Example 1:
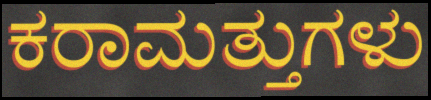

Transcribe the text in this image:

ಕರಾಮತ್ತುಗಳು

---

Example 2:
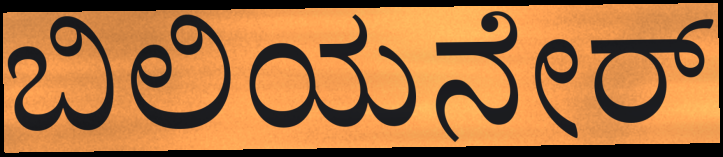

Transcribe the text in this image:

ಬಿಲಿಯನೇರ್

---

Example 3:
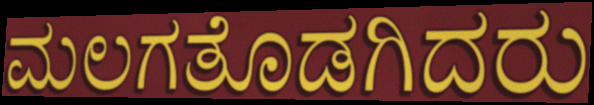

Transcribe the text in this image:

ಮಲಗತೊಡಗಿದರು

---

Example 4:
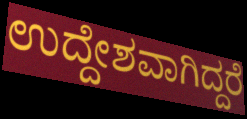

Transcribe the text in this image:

ಉದ್ದೇಶವಾಗಿದ್ದರೆ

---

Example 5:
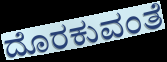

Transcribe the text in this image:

ದೊರಕುವಂತೆ